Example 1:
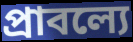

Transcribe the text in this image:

প্রাবল্যে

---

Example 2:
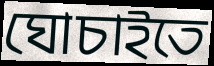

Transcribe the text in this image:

ঘোচাইতে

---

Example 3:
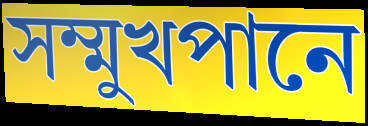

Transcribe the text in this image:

সম্মুখপানে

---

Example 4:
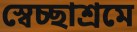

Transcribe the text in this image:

স্বেচ্ছাশ্রমে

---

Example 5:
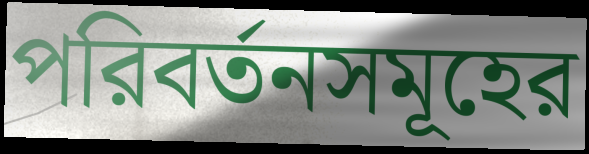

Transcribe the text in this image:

পরিবর্তনসমূহের